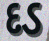
દડ